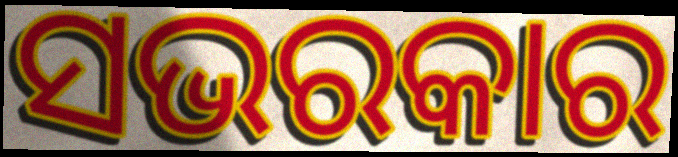
ସଭରକାର